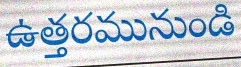
ఉత్తరమునుండి